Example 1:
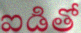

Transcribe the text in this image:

ఐడితో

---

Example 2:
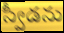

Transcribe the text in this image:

స్వీడను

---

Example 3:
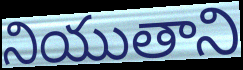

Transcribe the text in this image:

నియుతాని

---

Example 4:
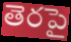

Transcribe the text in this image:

తెరపై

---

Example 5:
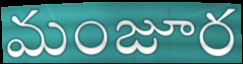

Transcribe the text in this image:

మంజూర